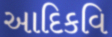
આદિકવિ